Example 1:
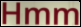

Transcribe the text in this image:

Hmm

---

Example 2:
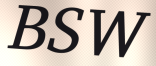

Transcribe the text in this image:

BSW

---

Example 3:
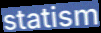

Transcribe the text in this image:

statism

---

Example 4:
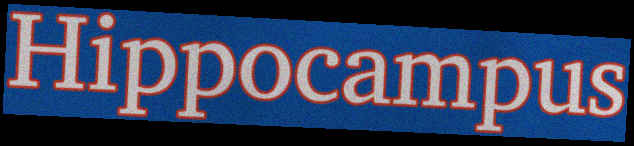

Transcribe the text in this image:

Hippocampus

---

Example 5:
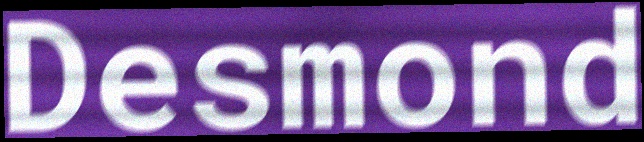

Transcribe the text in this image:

Desmond